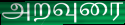
அறவுரை